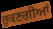
ਰੁਕਣਗੀਆਂ